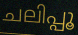
ചലിപ്പൂ